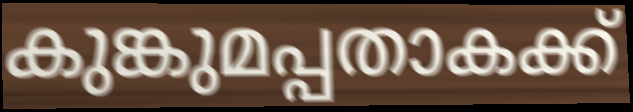
കുങ്കുമപ്പതാകക്ക്